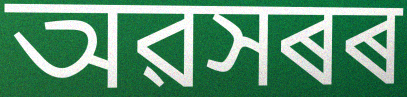
অৱসৰৰ